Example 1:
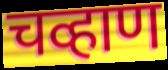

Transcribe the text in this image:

चव्हाण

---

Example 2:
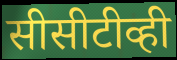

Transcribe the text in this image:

सीसीटीव्ही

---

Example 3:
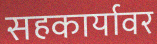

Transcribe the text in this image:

सहकार्यावर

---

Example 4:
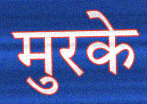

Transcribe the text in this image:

मुरके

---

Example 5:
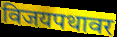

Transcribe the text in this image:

विजयपथावर